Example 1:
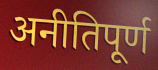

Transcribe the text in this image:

अनीतिपूर्ण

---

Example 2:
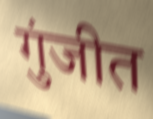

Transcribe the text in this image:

गुंजीत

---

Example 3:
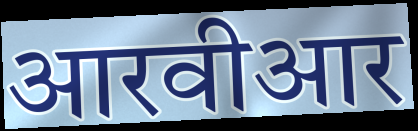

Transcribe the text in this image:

आरवीआर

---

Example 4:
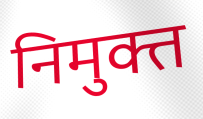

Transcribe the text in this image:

निमुक्त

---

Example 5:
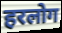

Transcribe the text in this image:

हरलोग